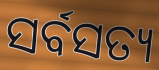
ସର୍ବସତ୍ୟ